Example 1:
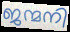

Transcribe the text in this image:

ജന്മനി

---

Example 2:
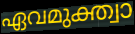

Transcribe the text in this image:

ഏവമുക്ത്വാ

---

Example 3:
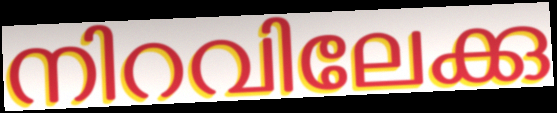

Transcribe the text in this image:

നിറവിലേക്കു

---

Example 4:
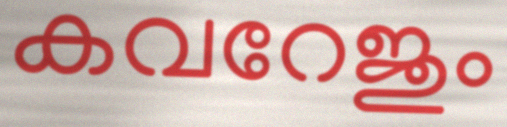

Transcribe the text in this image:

കവറേജും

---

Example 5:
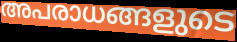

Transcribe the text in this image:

അപരാധങ്ങളുടെ